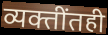
व्यक्तींतही